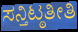
ಸನ್ತಿಟ್ಠತೀತಿ